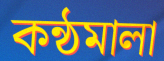
কন্ঠমালা